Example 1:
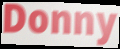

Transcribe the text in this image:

Donny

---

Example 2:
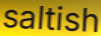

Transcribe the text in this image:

saltish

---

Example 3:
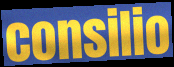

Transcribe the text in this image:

consilio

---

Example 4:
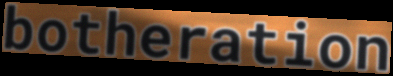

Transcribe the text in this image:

botheration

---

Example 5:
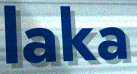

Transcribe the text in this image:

laka